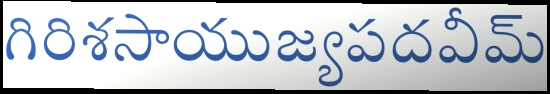
గిరిశసాయుజ్యపదవీమ్